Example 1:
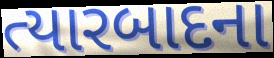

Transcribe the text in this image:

ત્યારબાદના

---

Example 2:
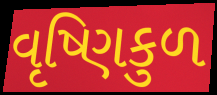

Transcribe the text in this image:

વૃષ્ણિકુળ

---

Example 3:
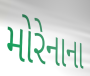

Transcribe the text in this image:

મોરેનાના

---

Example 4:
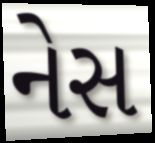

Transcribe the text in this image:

નેસ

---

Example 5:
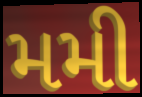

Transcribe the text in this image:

મમી